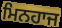
ਮਿਨਹਾਜ